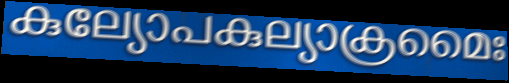
കുല്യോപകുല്യാക്രമൈഃ